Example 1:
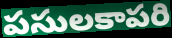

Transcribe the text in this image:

పసులకాపరి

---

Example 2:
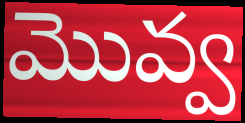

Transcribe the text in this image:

మొవ్వ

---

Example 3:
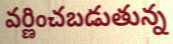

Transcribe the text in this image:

వర్ణించబడుతున్న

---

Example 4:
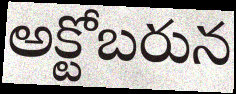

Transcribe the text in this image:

అక్టోబరున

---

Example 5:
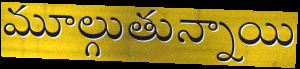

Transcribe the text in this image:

మూల్గుతున్నాయి